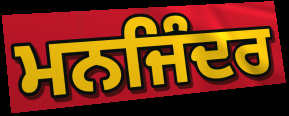
ਮਨਜਿੰਦਰ